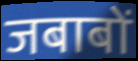
जबाबों